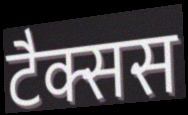
टैक्सस